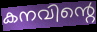
കനവിന്റെ